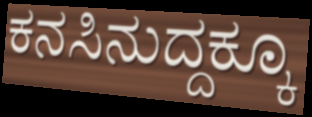
ಕನಸಿನುದ್ದಕ್ಕೂ